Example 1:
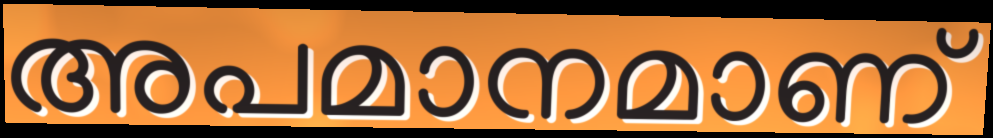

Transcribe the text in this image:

അപമാനമാണ്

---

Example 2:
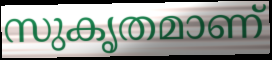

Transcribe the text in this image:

സുകൃതമാണ്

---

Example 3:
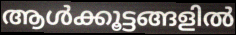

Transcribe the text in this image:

ആൾക്കൂട്ടങ്ങളിൽ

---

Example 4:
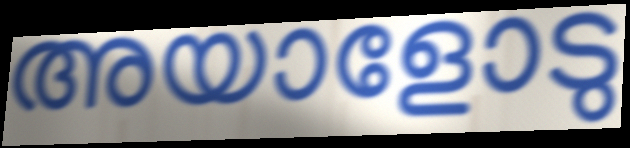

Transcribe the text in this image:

അയാളോടു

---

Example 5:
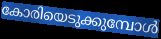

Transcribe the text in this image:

കോരിയെടുക്കുമ്പോൾ